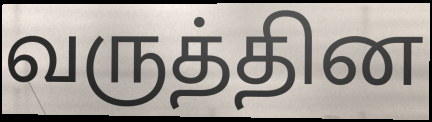
வருத்தின